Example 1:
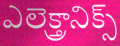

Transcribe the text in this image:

ఎలెక్త్రానిక్స్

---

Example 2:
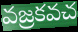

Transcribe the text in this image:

వజ్రకవచ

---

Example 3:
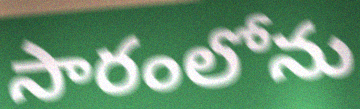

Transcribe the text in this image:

సారంలోను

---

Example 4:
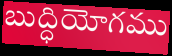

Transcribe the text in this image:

బుద్ధియోగము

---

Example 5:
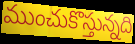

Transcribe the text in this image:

ముంచుకొస్తున్నది